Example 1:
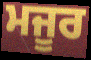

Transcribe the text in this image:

ਮਜੂਰ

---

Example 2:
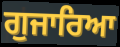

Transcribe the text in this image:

ਗੁਜਾਰਿਆ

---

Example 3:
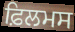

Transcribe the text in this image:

ਫ਼ਿਲਮਸ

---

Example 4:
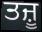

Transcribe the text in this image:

ਤਜ਼ੂ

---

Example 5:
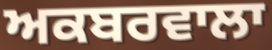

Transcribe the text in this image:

ਅਕਬਰਵਾਲਾ